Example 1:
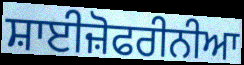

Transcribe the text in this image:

ਸ਼ਾਈਜ਼ੋਫਰੀਨੀਆ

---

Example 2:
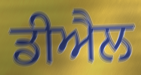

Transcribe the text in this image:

ਡੀਐਲ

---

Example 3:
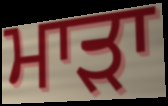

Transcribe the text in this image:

ਮਾਡ਼ਾ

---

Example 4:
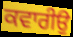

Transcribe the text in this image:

ਕਵਾਰੀਉ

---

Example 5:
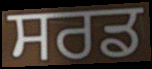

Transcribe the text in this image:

ਸਰਡ